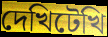
দেখিটেখি